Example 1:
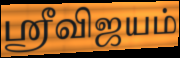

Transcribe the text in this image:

ஸ்ரீவிஜயம்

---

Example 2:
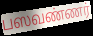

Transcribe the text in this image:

பஸவண்ணர்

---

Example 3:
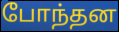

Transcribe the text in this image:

போந்தன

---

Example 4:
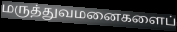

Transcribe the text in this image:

மருத்துவமனைகளைப்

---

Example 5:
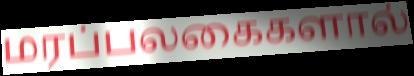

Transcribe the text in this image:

மரப்பலகைகளால்